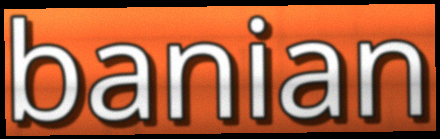
banian